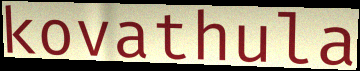
kovathula